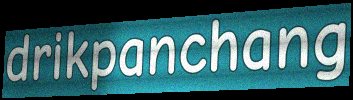
drikpanchang